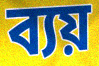
ব্যয়